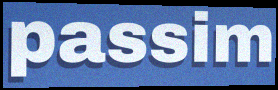
passim